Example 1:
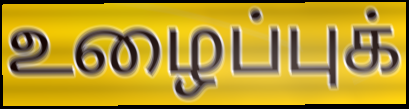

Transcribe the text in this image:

உழைப்புக்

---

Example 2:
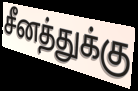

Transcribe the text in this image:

சீனத்துக்கு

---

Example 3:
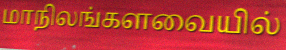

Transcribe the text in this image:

மாநிலங்களவையில்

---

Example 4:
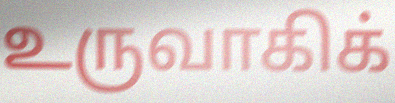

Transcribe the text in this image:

உருவாகிக்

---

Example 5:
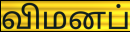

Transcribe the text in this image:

விமனப்